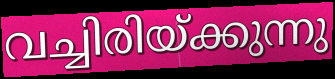
വച്ചിരിയ്ക്കുന്നു